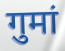
गुमां